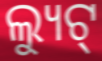
ଲ୍ୟୁଟ୍